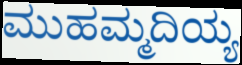
ಮುಹಮ್ಮದಿಯ್ಯ